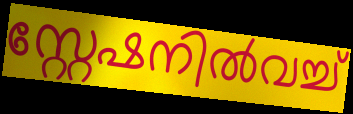
സ്റ്റേഷനിൽവച്ച്